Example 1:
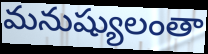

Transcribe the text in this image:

మనుష్యులంతా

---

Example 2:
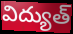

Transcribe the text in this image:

విద్యుత్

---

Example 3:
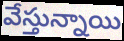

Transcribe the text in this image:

వేస్తున్నాయి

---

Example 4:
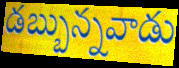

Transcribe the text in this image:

డబ్బున్నవాడు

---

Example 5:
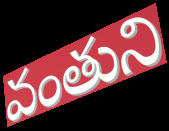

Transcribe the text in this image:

వంతుని